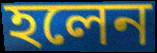
হলেন